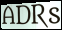
ADRs